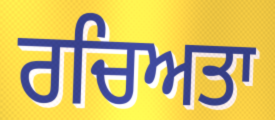
ਰਚਿਅਤਾ